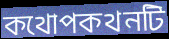
কথোপকথনটি